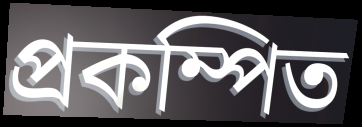
প্রকম্পিত